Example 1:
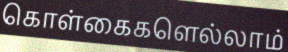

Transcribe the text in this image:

கொள்கைகளெல்லாம்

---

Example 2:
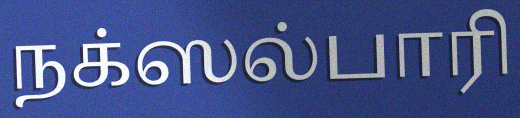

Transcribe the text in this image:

நக்ஸல்பாரி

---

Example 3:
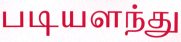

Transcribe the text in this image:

படியளந்து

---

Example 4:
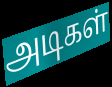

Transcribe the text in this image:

அடிகள்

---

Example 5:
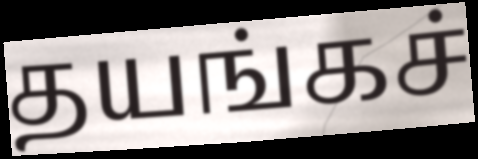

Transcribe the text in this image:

தயங்கச்